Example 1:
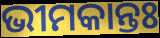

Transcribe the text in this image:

ଭୀମକାନ୍ତଃ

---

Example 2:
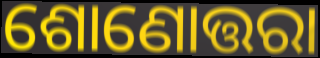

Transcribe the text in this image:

ଶୋଣୋତ୍ତରା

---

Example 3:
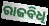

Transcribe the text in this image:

ରାଜବିଧି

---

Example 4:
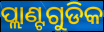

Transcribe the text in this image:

ପ୍ଲାଣ୍ଟଗୁଡିକ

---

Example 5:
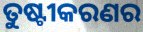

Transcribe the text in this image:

ତୁଷ୍ଟୀକରଣର